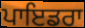
ਪਾਇਡਰਾ